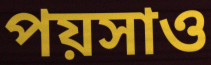
পয়সাও